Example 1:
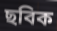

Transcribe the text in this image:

ছবিক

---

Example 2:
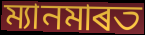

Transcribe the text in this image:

ম্যানমাৰত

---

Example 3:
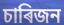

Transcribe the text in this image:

চাৰিজন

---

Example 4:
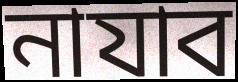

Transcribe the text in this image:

নাযাব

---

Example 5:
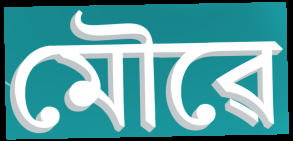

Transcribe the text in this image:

মৌৱে